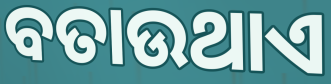
ବତାଉଥାଏ